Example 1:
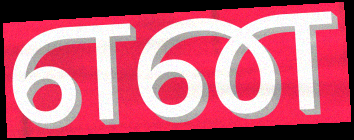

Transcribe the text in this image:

என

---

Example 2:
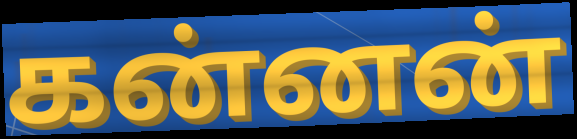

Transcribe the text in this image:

கன்னன்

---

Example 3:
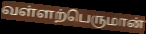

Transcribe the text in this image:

வள்ளற்பெருமான்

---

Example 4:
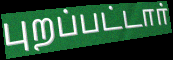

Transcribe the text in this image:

புறப்பட்டார்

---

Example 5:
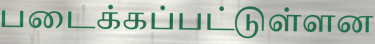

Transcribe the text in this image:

படைக்கப்பட்டுள்ளன